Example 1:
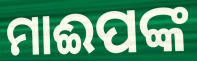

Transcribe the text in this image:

ମାଈପଙ୍କ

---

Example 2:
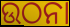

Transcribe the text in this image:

ଉଠନା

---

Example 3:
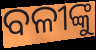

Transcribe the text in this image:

ବଳୀଙ୍କୁ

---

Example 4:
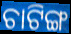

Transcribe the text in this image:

ଚାଟିଙ୍ଗ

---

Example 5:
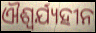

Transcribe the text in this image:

ଐଶ୍ୱର୍ଯ୍ୟହୀନ